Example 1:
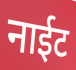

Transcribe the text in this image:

नाईट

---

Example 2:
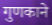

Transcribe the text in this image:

गुणकाने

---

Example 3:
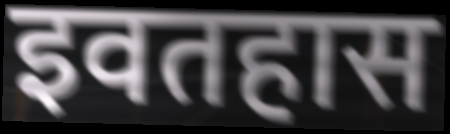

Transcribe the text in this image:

इवतहास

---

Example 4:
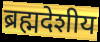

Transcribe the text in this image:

ब्रह्मदेशीय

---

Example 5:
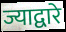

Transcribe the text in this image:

ज्याद्वारे